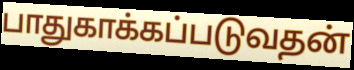
பாதுகாக்கப்படுவதன்